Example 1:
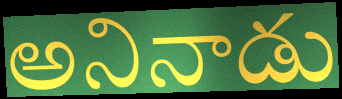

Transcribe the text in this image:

అనినాడు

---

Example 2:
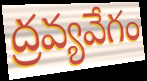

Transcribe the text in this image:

ద్రవ్యవేగం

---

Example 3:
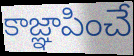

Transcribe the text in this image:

కాజ్ఞాపించే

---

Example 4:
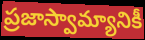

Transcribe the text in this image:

ప్రజాస్వామ్యానికీ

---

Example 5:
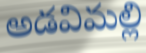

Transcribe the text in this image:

అడవిమల్లి